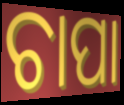
ଚାପା